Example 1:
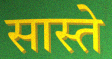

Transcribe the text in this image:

सास्ते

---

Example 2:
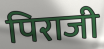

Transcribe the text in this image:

पिराजी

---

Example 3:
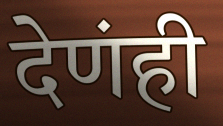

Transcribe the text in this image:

देणंही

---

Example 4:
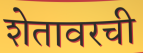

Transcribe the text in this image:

शेतावरची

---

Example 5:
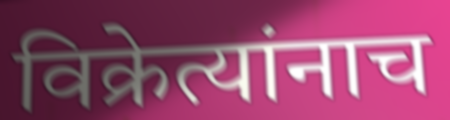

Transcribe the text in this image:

विक्रेत्यांनाच